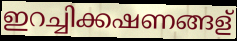
ഇറച്ചിക്കഷണങ്ങള്